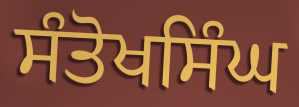
ਸੰਤੋਖਸਿੰਘ